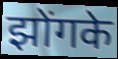
झोंगके